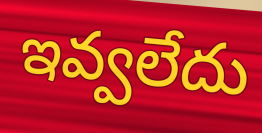
ఇవ్వలేదు